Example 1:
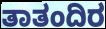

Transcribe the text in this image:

ತಾತಂದಿರ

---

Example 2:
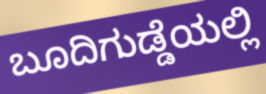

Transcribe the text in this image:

ಬೂದಿಗುಡ್ಡೆಯಲ್ಲಿ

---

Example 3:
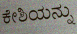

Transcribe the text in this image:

ಕೇಶಿಯನ್ನು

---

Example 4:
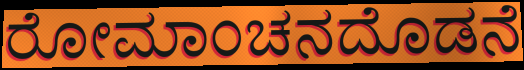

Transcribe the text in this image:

ರೋಮಾಂಚನದೊಡನೆ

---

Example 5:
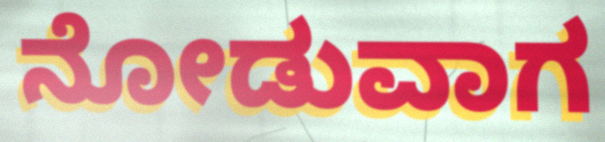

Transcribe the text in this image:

ನೋಡುವಾಗ